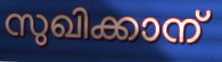
സുഖിക്കാന്